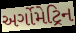
અર્ગોમેટ્રિન